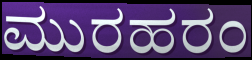
ಮುರಹರಂ